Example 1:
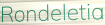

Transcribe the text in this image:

Rondeletia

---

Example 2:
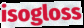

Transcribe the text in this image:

isogloss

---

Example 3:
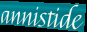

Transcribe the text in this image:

annistide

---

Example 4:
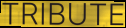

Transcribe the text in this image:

TRIBUTE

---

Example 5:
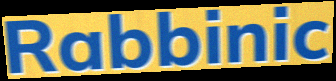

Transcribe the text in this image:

Rabbinic